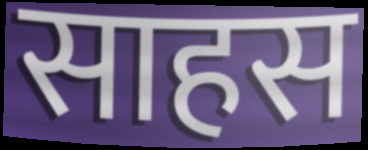
साहस